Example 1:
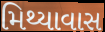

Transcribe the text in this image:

મિથ્યાવાસ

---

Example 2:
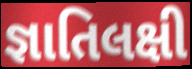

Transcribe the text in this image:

જ્ઞાતિલક્ષી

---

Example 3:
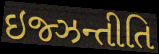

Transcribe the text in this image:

ઇજ્ઝન્તીતિ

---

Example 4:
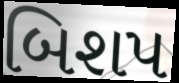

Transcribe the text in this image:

બિશપ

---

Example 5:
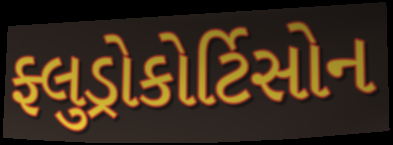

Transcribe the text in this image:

ફ્લુડ્રોકોર્ટિસોન